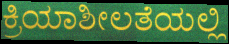
ಕ್ರಿಯಾಶೀಲತೆಯಲ್ಲಿ